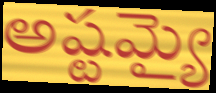
అష్టమ్యై